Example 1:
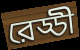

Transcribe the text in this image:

রেড্ডী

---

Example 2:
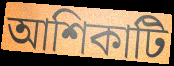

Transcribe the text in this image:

আশিকাটি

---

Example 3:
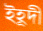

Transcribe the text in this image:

ইহূদী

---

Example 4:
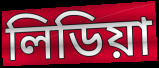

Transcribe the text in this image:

লিডিয়া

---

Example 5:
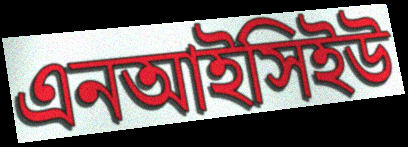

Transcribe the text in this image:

এনআইসিইউ